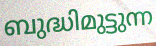
ബുദ്ധിമുട്ടുന്ന